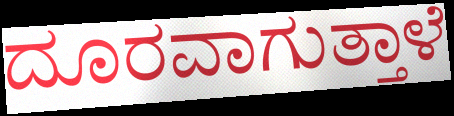
ದೂರವಾಗುತ್ತಾಳೆ